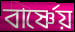
বার্ষ্ণেয়